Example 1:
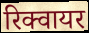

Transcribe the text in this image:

रिक्वायर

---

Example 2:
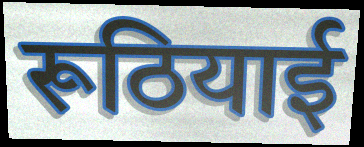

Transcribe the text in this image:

रूठियाई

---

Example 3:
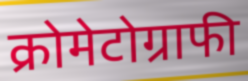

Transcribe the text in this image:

क्रोमेटोग्राफी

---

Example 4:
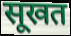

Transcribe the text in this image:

सूखत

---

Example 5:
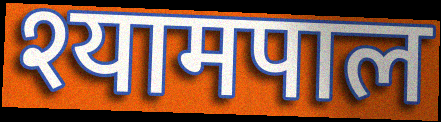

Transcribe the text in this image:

श्यामपाल